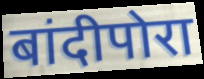
बांदीपोरा